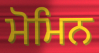
ਮੋਮਿਨ